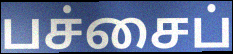
பச்சைப்